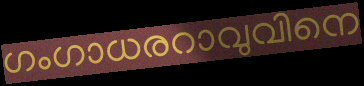
ഗംഗാധരറാവുവിനെ